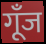
गूँज